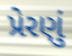
પ્રેરણું